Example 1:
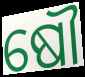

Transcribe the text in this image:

ଷୌ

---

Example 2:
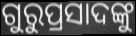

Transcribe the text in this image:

ଗୁରୁପ୍ରସାଦଙ୍କୁ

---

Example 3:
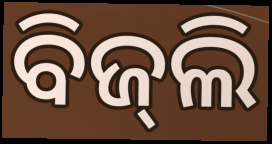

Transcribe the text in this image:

ବିଜ୍‍ଲି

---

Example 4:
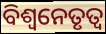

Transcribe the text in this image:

ବିଶ୍ୱନେତୃତ୍ୱ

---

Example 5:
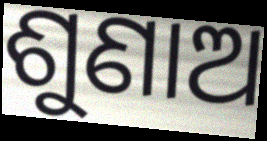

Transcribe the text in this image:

ଶୁଣାଅ